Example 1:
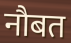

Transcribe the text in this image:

नौबत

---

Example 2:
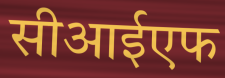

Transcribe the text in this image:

सीआईएफ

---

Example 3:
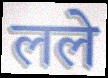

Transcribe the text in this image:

लले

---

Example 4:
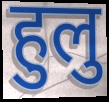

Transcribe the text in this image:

हुलु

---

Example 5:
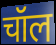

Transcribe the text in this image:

चॉल